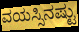
ವಯಸ್ಸಿನಷ್ಟು